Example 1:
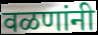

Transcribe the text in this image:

वळणांनी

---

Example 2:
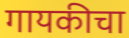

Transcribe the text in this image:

गायकीचा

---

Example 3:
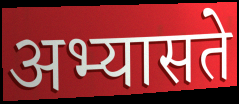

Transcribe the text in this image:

अभ्यासते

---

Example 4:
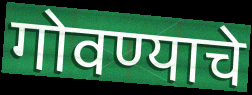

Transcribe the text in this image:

गोवण्याचे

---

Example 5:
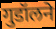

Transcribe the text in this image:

गुडॉलने